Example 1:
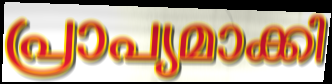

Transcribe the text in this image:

പ്രാപ്യമാക്കി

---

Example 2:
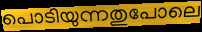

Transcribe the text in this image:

പൊടിയുന്നതുപോലെ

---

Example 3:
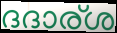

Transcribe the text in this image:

ദദാര്ശ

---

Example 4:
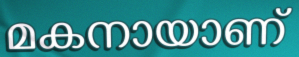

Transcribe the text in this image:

മകനായാണ്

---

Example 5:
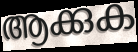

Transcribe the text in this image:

ആക്കുക